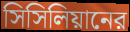
সিসিলিয়ানের